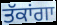
ਤੱਕਾਂਗਾ